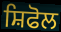
ਸ਼ਿਫੋਲ